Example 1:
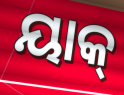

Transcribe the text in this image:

ୟାକ୍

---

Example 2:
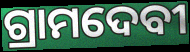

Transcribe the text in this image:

ଗ୍ରାମଦେବୀ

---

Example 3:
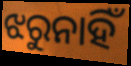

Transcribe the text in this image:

ଝରୁନାହିଁ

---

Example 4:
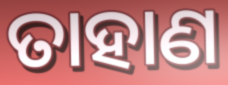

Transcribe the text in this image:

ତାହାଣ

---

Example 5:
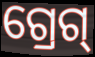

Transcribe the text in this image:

ଗ୍ରେଗ୍